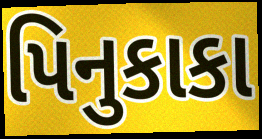
પિનુકાકા